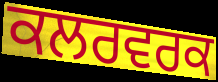
ਕਲਰਵਰਕ